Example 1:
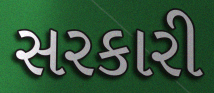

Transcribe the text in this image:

સરકારી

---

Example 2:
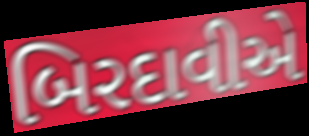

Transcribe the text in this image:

બિરદાવીએ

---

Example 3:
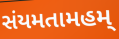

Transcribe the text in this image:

સંયમતામહમ્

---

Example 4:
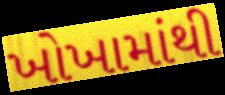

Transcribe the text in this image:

ખોખામાંથી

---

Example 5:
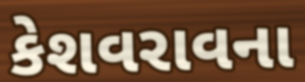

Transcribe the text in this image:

કેશવરાવના